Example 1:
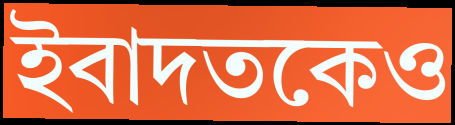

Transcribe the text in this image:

ইবাদতকেও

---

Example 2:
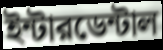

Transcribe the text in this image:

ইন্টারডেন্টাল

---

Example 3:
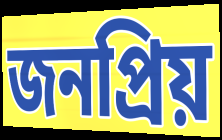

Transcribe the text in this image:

জনপ্রিয়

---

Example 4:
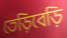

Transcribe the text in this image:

তেড়িবেড়ি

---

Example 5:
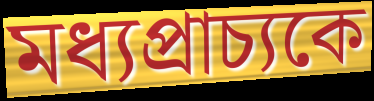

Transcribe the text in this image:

মধ্যপ্রাচ্যকে